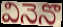
వినెనొ